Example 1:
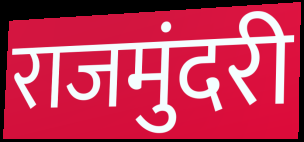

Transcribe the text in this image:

राजमुंदरी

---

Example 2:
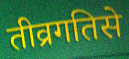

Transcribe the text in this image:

तीव्रगतिसे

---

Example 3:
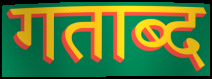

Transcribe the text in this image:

गताब्द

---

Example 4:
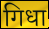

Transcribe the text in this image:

गिधा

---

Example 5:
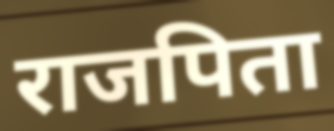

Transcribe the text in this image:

राजपिता